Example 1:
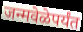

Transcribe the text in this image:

जन्मवेळेपर्यंत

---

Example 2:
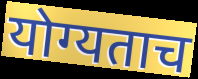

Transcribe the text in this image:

योग्यताच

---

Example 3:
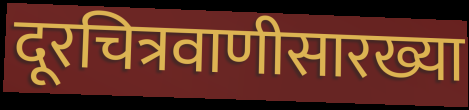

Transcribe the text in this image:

दूरचित्रवाणीसारख्या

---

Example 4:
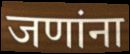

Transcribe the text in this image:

जणांना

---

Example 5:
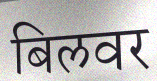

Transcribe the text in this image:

बिलवर